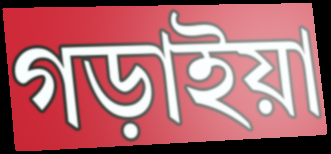
গড়াইয়া